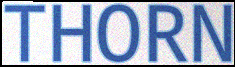
THORN